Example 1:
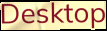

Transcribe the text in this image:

Desktop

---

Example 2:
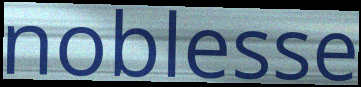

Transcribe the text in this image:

noblesse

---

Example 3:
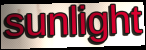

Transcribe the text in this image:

sunlight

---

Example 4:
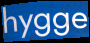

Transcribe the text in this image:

hygge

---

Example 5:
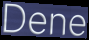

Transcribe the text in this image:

Dene